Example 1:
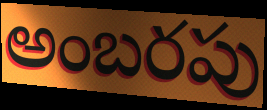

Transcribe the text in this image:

అంబరపు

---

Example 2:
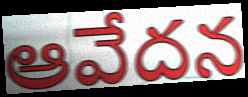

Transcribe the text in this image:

ఆవేదన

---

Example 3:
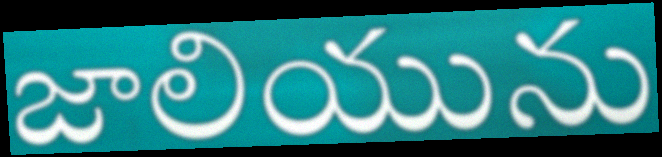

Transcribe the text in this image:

జాలియును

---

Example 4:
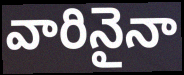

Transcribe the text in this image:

వారినైనా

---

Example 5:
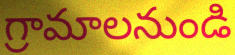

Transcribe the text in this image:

గ్రామాలనుండి